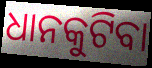
ଧାନକୁଟିବା